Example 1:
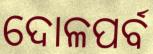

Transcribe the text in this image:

ଦୋଳପର୍ବ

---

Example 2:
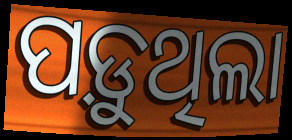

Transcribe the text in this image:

ପଡ଼ୁଥିଲା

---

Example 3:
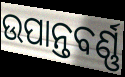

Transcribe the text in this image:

ଉପାନ୍ତବର୍ଣ୍ଣ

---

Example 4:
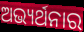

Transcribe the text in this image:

ଅଭ୍ୟର୍ଥନାର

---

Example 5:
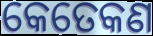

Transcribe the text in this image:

କେତେକଣ